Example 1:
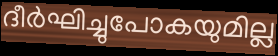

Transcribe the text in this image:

ദീർഘിച്ചുപോകയുമില്ല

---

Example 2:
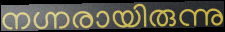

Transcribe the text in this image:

നഗ്നരായിരുന്നു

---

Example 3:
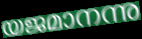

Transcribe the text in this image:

യജമാനന്നു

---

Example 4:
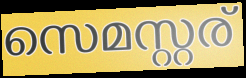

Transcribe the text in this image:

സെമസ്റ്റര്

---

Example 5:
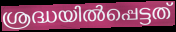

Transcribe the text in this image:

ശ്രദ്ധയിൽപ്പെട്ടത്